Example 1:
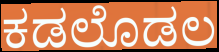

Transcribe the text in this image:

ಕಡಲೊಡಲ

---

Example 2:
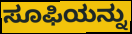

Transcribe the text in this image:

ಸೂಫಿಯನ್ನು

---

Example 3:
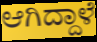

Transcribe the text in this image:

ಆಗಿದ್ದಾಳೆ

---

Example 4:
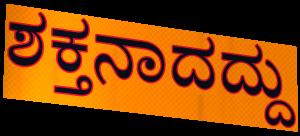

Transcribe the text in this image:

ಶಕ್ತನಾದದ್ದು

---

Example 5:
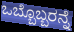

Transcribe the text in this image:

ಒಬ್ಬೊಬ್ಬರನ್ನೆ